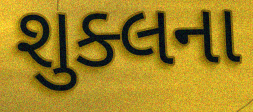
શુક્લના